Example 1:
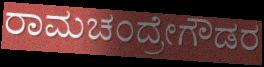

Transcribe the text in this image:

ರಾಮಚಂದ್ರೇಗೌಡರ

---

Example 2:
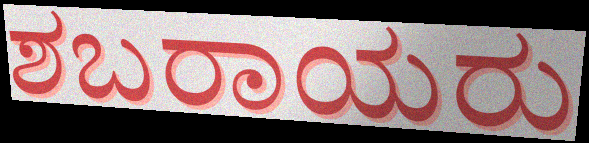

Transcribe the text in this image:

ಶಬರಾಯರು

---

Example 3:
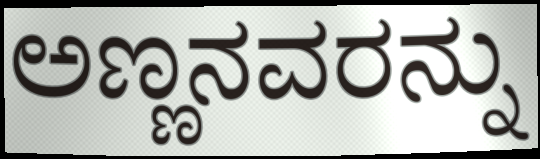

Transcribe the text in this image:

ಅಣ್ಣನವರನ್ನು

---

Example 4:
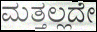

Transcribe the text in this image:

ಮತ್ತಲ್ಲದೇ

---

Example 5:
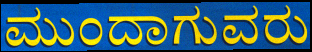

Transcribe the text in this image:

ಮುಂದಾಗುವರು